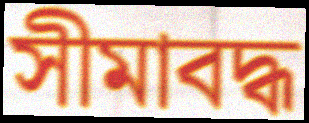
সীমাবদ্ধ